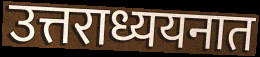
उत्तराध्ययनात